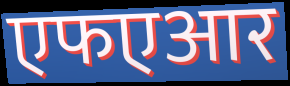
एफएआर